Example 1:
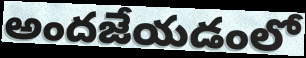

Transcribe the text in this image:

అందజేయడంలో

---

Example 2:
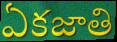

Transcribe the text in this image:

ఏకజాతి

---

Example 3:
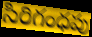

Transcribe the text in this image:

సిరిగంధపు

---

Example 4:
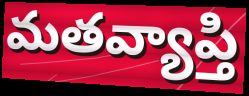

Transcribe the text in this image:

మతవ్యాప్తి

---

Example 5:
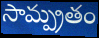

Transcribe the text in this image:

సామ్ప్రతం